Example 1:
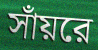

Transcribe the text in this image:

সাঁয়রে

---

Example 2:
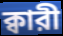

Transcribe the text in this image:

ক্বারী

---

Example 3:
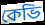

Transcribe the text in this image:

কেভি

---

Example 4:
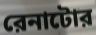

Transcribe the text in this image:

রেনাটোর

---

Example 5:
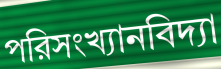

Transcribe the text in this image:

পরিসংখ্যানবিদ্যা